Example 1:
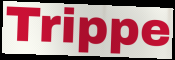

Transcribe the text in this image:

Trippe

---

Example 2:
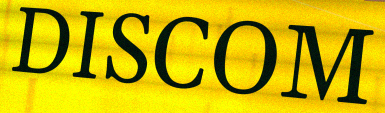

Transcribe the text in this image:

DISCOM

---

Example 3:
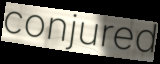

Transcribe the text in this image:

conjured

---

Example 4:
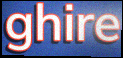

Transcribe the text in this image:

ghire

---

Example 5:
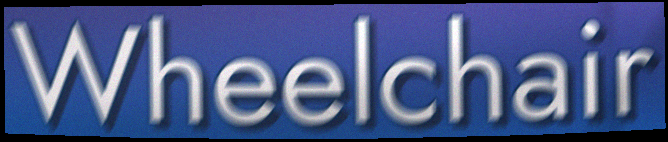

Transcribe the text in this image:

Wheelchair